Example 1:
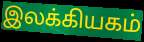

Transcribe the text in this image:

இலக்கியகம்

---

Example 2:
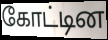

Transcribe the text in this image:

கோட்டின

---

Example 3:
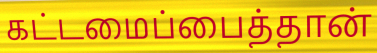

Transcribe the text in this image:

கட்டமைப்பைத்தான்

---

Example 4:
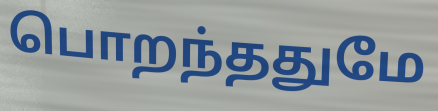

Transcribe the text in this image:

பொறந்ததுமே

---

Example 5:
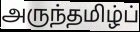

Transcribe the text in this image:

அருந்தமிழ்ப்